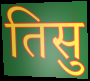
तिसु